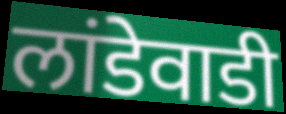
लांडेवाडी